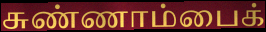
சுண்ணாம்பைக்